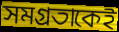
সমগ্রতাকেই